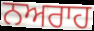
ਨਅਰਾਹ